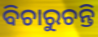
ବିଚାରୁଚନ୍ତି